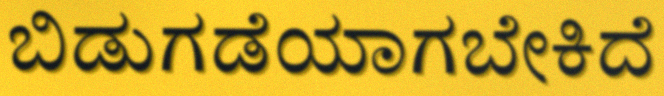
ಬಿಡುಗಡೆಯಾಗಬೇಕಿದೆ